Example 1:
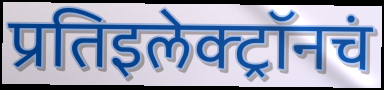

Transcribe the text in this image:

प्रतिइलेक्ट्रॉनचं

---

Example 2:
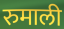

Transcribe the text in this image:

रुमाली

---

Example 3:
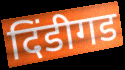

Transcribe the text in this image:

दिंडीगड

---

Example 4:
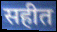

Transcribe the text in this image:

सहीत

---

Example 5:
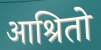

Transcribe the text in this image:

आश्रितो